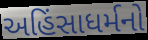
અહિંસાધર્મનો